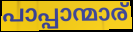
പാപ്പാന്മാര്